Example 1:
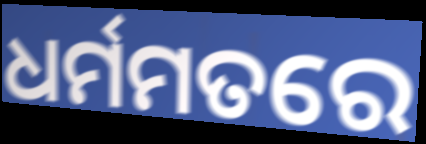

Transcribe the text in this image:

ଧର୍ମମତରେ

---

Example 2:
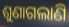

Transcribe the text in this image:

ଶୁଣାଗଲାଣି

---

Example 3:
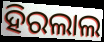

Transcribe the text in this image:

ହିରଲାଲ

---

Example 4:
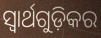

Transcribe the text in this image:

ସ୍ୱାର୍ଥଗୁଡ଼ିକର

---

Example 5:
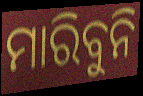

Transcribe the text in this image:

ମାରିବୁନି